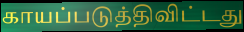
காயப்படுத்திவிட்டது